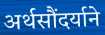
अर्थसौंदर्याने